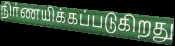
நிர்ணயிக்கப்படுகிறது